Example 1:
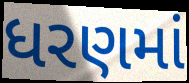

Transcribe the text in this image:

ધરણમાં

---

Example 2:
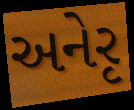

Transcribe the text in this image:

અનેરૃ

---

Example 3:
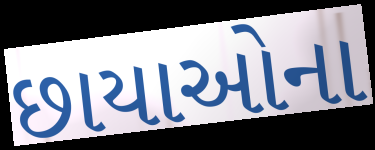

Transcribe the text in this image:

છાયાઓના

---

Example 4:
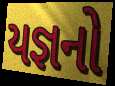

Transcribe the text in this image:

યજ્ઞનો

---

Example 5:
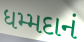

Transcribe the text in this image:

ધમ્મદાનં